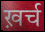
ख़र्च